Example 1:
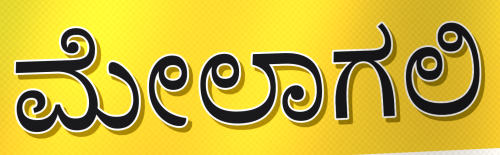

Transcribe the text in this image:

ಮೇಲಾಗಲಿ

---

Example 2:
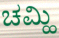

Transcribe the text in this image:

ಚಮ್ಹಿ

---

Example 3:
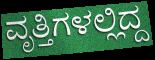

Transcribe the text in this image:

ವೃತ್ತಿಗಳಲ್ಲಿದ್ದ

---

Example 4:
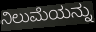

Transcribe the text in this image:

ನಿಲುಮೆಯನ್ನು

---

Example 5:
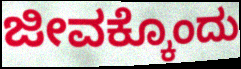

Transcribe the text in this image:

ಜೀವಕ್ಕೊಂದು